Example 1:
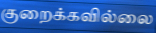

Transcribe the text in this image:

குறைக்கவில்லை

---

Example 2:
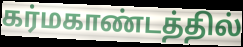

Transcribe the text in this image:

கர்மகாண்டத்தில்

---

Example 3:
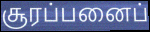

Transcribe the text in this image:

சூரப்பனைப்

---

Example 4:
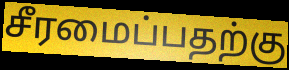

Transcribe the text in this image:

சீரமைப்பதற்கு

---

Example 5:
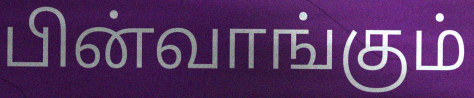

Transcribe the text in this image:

பின்வாங்கும்